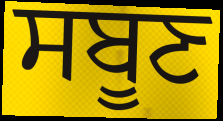
ਸਬੂਣ